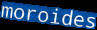
moroides